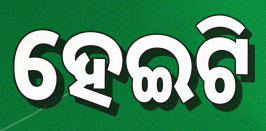
ହେଇଟି